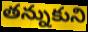
తన్నుకుని